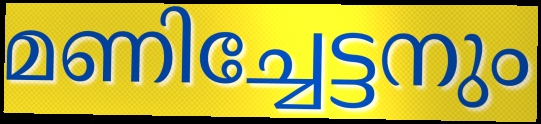
മണിച്ചേട്ടനും